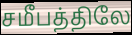
சமீபத்திலே